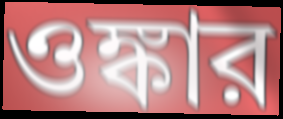
ওঙ্কার